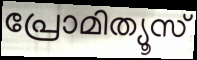
പ്രോമിത്യൂസ്